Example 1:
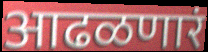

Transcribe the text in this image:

आढळणारं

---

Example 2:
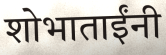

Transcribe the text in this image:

शोभाताईंनी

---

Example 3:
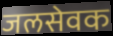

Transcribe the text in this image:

जलसेवक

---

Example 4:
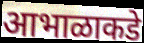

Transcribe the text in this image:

आभाळाकडे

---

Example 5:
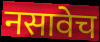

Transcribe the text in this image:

नसावेच